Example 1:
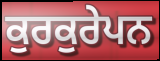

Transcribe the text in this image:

ਕੁਰਕੁਰੇਪਨ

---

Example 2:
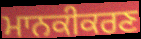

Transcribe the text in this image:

ਮਾਨਕੀਕਰਣ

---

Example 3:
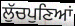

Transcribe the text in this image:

ਲੁੱਚਪੁਣਿਆਂ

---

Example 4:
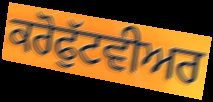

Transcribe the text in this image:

ਕਰੋਫੁੱਟਵੀਅਰ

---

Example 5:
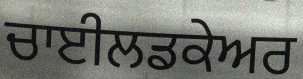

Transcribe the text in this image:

ਚਾਈਲਡਕੇਅਰ